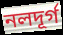
নলদূর্গ